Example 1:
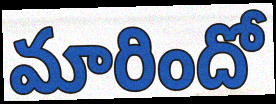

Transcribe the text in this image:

మారిందో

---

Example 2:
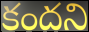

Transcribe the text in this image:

కందని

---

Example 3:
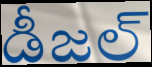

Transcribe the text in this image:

డీజల్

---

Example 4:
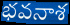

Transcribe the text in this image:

భవనాశ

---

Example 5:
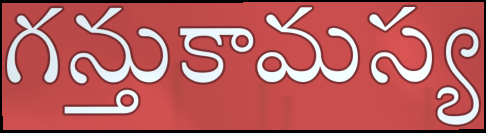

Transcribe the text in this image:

గన్తుకామస్య